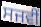
ਸਜਵੀਂ